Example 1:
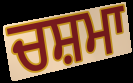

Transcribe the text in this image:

ਚਸ਼ਮਾ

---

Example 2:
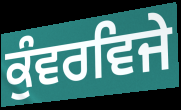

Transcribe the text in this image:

ਕੁੰਵਰਵਿਜੇ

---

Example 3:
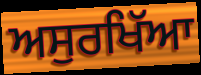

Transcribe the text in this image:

ਅਸੁਰਖਿੱਆ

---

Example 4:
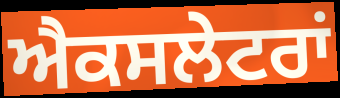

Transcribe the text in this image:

ਐਕਸਲੇਟਰਾਂ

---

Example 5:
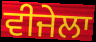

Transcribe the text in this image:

ਵੀਜੇਲਾ